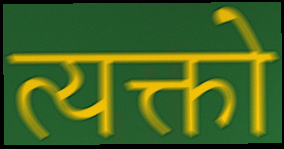
त्यक्तो